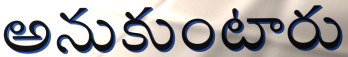
అనుకుంటారు